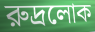
রুদ্রলোক